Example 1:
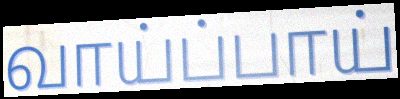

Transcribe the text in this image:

வாய்ப்பாய்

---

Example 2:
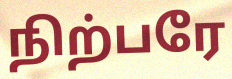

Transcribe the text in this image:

நிற்பரே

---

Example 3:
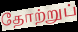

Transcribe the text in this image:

தோற்றுப்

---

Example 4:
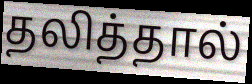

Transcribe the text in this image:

தலித்தால்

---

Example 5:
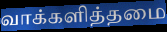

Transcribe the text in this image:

வாக்களித்தமை